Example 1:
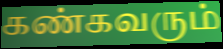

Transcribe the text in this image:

கண்கவரும்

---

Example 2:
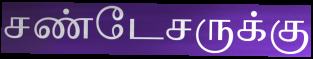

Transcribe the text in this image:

சண்டேசருக்கு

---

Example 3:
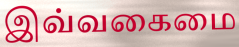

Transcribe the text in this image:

இவ்வகைமை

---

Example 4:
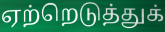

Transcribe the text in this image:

ஏற்றெடுத்துக்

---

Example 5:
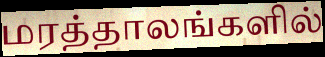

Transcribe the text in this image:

மரத்தாலங்களில்